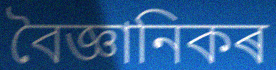
বৈজ্ঞানিকৰ